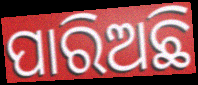
ପାରିଅଛି